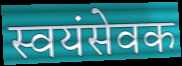
स्वयंसेवक